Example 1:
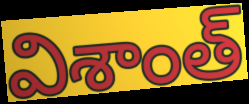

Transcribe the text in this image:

విశాంత్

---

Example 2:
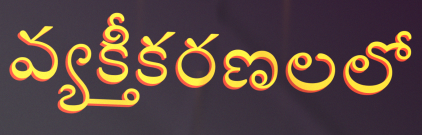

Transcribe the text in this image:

వ్యక్తీకరణలలో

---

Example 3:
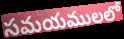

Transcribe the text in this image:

సమయములలో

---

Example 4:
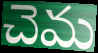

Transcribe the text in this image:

చెమ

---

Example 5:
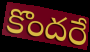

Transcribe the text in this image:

కొందరే